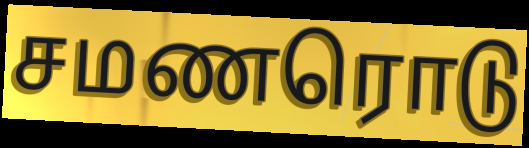
சமணரொடு